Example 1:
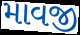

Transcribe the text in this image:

માવજી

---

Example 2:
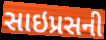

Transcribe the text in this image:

સાઇપ્રસની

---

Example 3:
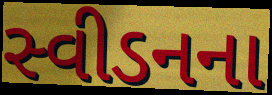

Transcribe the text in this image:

સ્વીડનના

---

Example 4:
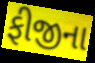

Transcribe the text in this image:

ફીજીના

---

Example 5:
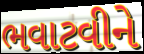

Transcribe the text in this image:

ભવાટવીને